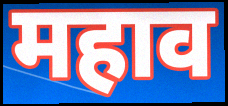
महाव